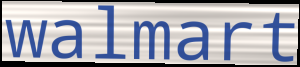
walmart